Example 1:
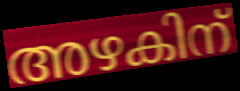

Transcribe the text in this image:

അഴകിന്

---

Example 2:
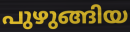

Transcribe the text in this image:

പുഴുങ്ങിയ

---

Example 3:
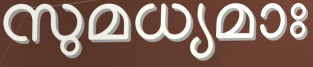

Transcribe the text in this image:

സുമധ്യമാഃ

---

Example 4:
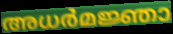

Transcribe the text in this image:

അധർമജ്ഞാ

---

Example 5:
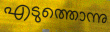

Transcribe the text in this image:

എടുത്തൊന്നു